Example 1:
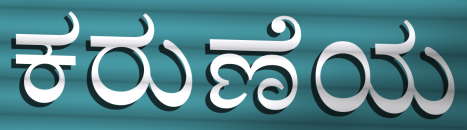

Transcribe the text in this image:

ಕರುಣೆಯ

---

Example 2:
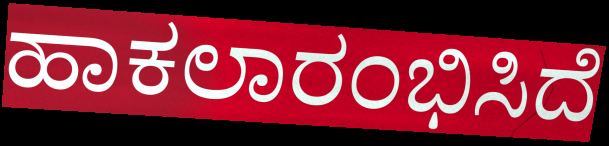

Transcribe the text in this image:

ಹಾಕಲಾರಂಭಿಸಿದೆ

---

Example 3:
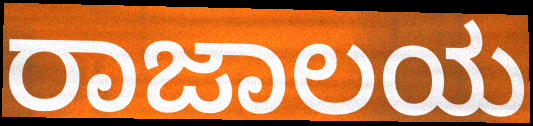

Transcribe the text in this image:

ರಾಜಾಲಯ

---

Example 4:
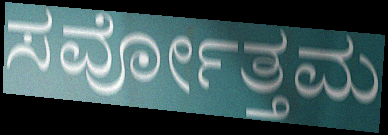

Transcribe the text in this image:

ಸರ್ವೋತ್ತಮ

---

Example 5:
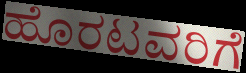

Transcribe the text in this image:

ಹೊರಟವರಿಗೆ